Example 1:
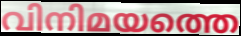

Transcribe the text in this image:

വിനിമയത്തെ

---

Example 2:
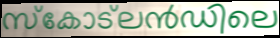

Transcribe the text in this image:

സ്കോട്ലൻഡിലെ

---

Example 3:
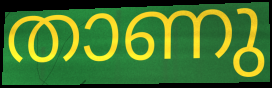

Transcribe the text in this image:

താണു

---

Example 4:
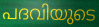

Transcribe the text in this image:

പദവിയുടെ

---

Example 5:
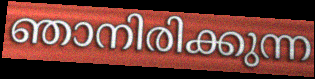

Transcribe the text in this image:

ഞാനിരിക്കുന്ന